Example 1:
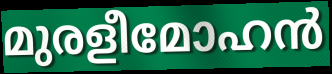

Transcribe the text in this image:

മുരളീമോഹൻ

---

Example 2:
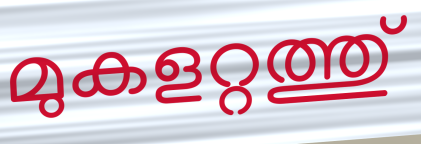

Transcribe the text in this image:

മുകളറ്റത്തു്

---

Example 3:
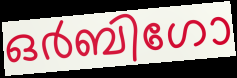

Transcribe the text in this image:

ഒർബിഗോ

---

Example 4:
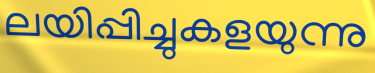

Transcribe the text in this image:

ലയിപ്പിച്ചുകളയുന്നു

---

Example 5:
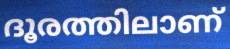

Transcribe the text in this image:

ദൂരത്തിലാണ്